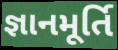
જ્ઞાનમૂર્તિ